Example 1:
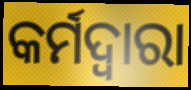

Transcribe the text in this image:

କର୍ମଦ୍ବାରା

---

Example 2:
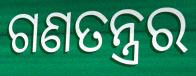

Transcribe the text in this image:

ଗଣତନ୍ତ୍ରର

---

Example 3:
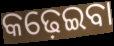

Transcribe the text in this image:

କଢ଼େଇବା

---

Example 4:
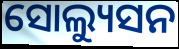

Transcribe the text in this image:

ସୋଲ୍ୟୁସନ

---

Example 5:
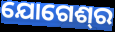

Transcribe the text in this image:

ଯୋଗେଶ୍‍ର